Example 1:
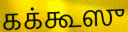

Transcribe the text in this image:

கக்கூஸு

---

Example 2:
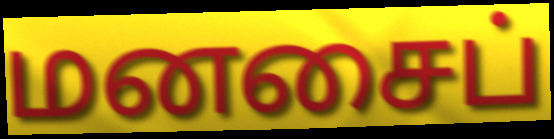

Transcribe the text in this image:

மனசைப்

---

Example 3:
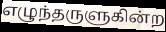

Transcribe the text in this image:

எழுந்தருளுகின்ற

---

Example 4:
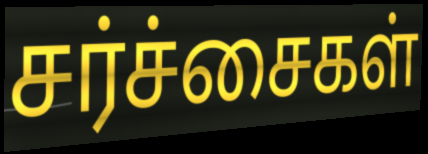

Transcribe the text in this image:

சர்ச்சைகள்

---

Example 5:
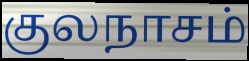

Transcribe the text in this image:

குலநாசம்